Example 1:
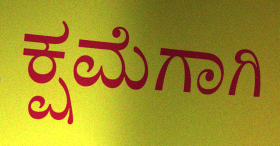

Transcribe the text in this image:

ಕ್ಷಮೆಗಾಗಿ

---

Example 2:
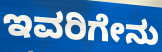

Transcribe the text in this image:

ಇವರಿಗೇನು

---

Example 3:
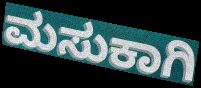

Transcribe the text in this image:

ಮಸುಕಾಗಿ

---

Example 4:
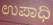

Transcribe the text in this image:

ಉಪಾಧಿ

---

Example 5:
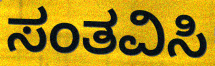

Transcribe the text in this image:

ಸಂತವಿಸಿ